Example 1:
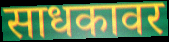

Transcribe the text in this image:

साधकावर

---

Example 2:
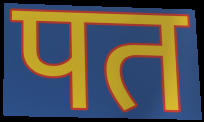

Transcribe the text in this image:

पत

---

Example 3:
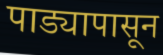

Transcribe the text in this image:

पाड्यापासून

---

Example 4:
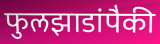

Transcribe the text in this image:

फुलझाडांपैकी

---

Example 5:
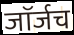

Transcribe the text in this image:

जॉर्जच